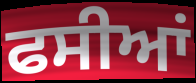
ਫਸੀਆਂ